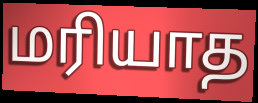
மரியாத